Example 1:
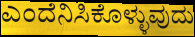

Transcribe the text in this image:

ಎಂದೆನಿಸಿಕೊಳ್ಳುವುದು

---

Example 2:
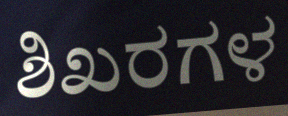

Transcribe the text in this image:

ಶಿಖರಗಳ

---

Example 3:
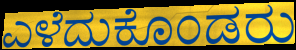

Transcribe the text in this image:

ಎಳೆದುಕೊಂಡರು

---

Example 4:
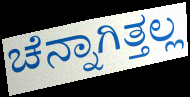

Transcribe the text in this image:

ಚೆನ್ನಾಗಿತ್ತಲ್ಲ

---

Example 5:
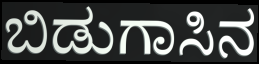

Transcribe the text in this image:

ಬಿಡುಗಾಸಿನ